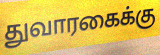
துவாரகைக்கு